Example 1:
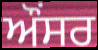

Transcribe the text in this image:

ਔਂਸਰ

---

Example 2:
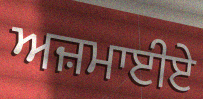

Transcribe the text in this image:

ਅਜ਼ਮਾਈਏ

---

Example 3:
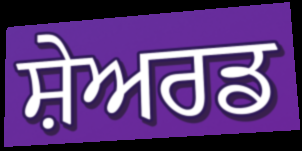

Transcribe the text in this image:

ਸ਼ੇਅਰਡ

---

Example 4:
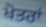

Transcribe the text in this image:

ਖੋਤਰਾਂ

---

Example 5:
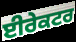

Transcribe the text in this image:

ਈਰੇਕਟਰ